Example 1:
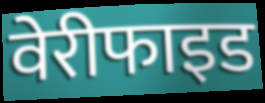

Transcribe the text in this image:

वेरीफाइड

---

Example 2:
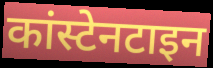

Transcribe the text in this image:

कांस्टेनटाइन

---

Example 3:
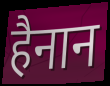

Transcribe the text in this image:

हैनान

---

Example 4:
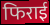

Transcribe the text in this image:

फिराई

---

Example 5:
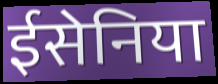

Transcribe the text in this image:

ईसेनिया